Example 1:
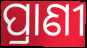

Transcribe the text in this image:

ପ୍ରାଣୀ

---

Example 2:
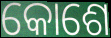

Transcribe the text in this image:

କୋଶେ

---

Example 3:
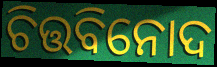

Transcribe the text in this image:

ଚିତ୍ତବିନୋଦ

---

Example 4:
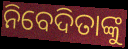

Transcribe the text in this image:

ନିବେଦିତାଙ୍କୁ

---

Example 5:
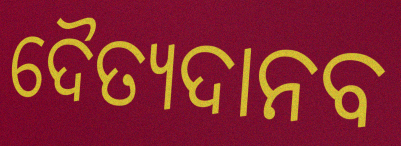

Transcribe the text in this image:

ଦୈତ୍ୟଦାନବ